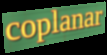
coplanar